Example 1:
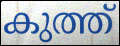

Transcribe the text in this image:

കുത്ത്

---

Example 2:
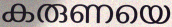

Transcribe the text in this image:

കരുണയെ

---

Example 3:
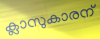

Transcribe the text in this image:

ക്ലാസുകാരന്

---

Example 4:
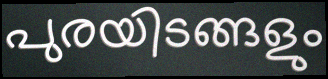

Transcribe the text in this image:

പുരയിടങ്ങളും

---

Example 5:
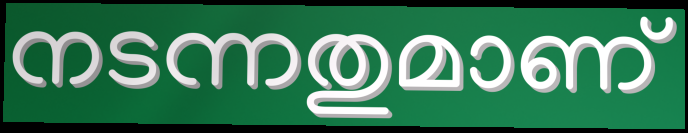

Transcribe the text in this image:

നടന്നതുമാണ്